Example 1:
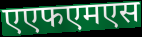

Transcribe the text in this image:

एएफएमएस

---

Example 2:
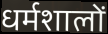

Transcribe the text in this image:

धर्मशालों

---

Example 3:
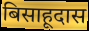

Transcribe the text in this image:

बिसाहूदास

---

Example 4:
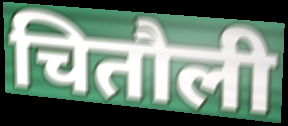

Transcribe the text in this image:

चितौली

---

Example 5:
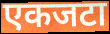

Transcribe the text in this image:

एकजटा